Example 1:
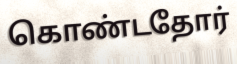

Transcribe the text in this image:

கொண்டதோர்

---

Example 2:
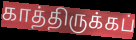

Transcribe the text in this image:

காத்திருக்கப்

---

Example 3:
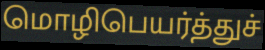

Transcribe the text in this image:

மொழிபெயர்த்துச்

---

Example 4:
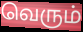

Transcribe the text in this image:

வெரும்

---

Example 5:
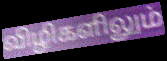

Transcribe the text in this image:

விழிகளிலும்